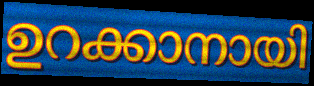
ഉറക്കാനായി